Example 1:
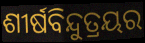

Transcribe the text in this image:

ଶୀର୍ଷବିନ୍ଦୁତ୍ରୟର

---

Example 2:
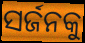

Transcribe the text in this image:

ସର୍ଜନକୁ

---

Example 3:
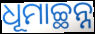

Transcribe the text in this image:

ଧୂମାଚ୍ଛନ୍ନ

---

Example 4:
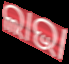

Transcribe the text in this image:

ଲାଭା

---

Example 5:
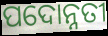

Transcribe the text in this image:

ପଦୋନ୍ନତୀ